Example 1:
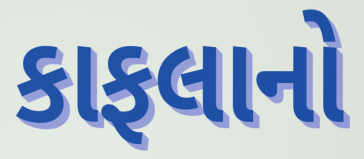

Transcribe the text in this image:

કાફલાનો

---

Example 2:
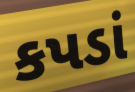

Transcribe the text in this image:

કપડાં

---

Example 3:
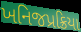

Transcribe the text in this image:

ખનિજપ્રક્રિયા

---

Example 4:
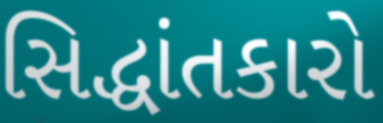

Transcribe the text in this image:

સિદ્ધાંતકારો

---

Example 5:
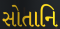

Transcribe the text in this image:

સોતાનિ